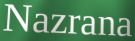
Nazrana